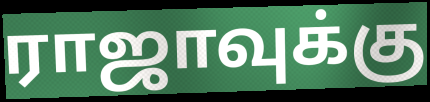
ராஜாவுக்கு